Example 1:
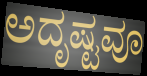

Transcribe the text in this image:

ಅದೃಷ್ಟವೂ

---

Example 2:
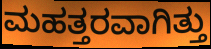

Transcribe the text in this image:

ಮಹತ್ತರವಾಗಿತ್ತು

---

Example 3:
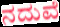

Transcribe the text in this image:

ನದುವೆ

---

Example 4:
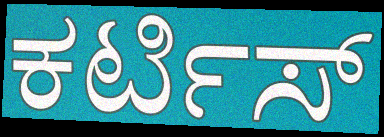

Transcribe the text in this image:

ಕರ್ಟಿಸ್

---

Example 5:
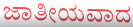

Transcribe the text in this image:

ಜಾತೀಯವಾದ